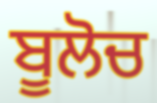
ਬੂਲੋਚ